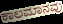
ಕಾಲಮಾನವು